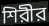
শিরীর